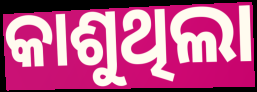
କାଶୁଥିଲା